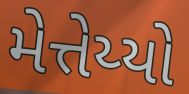
મેત્તેય્યો